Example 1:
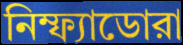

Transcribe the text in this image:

নিম্ফ্যাডোরা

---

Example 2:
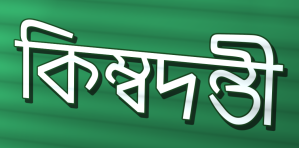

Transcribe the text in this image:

কিম্বদন্তী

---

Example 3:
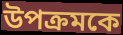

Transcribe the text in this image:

উপক্রমকে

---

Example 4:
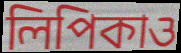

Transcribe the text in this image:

লিপিকাও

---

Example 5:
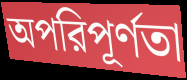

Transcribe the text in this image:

অপরিপূর্ণতা